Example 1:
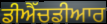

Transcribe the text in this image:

ਡੀਐੱਚਡੀਆਰ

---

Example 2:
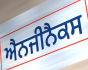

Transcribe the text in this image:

ਐਨਜੀਨੈਕਸ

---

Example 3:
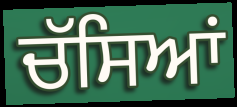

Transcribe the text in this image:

ਚੱਸਿਆਂ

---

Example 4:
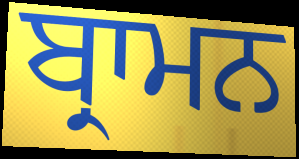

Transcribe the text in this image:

ਬ੍ਰਾਮਨ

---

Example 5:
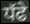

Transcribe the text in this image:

ਧੱਫੇ